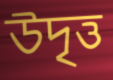
উদৃত্ত